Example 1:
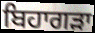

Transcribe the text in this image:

ਬਿਹਾਗੜਾ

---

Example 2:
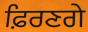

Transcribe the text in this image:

ਫ਼ਿਰਣਗੇ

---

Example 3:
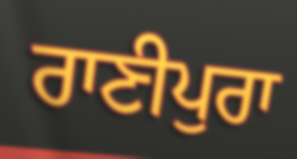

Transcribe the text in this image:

ਰਾਣੀਪੁਰਾ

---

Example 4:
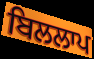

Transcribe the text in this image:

ਬਿਲਲਾਪ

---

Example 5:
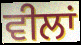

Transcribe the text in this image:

ਵੀਲਾਂ